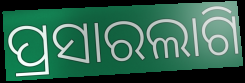
ପ୍ରସାରଲାଗି